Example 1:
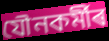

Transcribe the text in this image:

যৌনকৰ্মীৰ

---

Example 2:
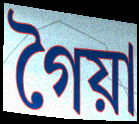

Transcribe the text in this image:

গৈয়া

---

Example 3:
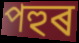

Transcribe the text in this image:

পহুৰ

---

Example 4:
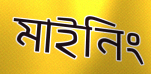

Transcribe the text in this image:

মাইনিং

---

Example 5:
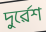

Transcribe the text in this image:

দুৰ্ৱেশ